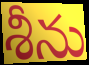
శీను